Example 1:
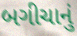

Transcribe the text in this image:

બગીચાનું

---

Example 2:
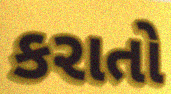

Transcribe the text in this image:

કરાતો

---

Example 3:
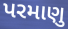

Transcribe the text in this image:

પરમાણુ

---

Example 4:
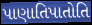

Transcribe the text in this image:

પાણાતિપાતોતિ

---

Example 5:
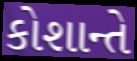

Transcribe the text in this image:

કોશાન્તે